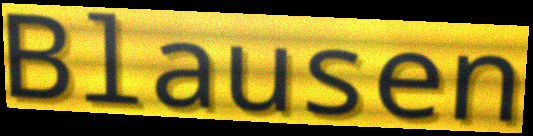
Blausen